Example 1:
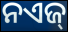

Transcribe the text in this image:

ନଏଜ୍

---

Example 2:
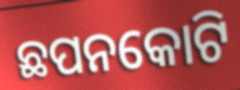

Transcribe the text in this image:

ଛପନକୋଟି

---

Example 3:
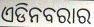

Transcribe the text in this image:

ଏଡିନବରାର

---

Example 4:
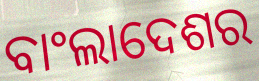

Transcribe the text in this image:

ବାଂଲାଦେଶର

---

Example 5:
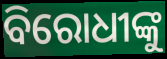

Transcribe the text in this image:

ବିରୋଧୀଙ୍କୁ